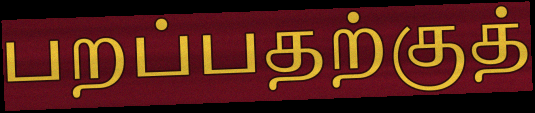
பறப்பதற்குத்